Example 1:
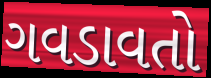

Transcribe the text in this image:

ગવડાવતો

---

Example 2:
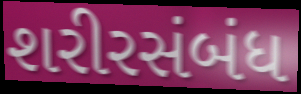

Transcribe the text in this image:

શરીરસંબંધ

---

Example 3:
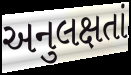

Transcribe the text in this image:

અનુલક્ષતાં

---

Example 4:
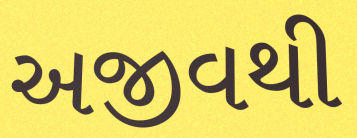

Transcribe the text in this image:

અજીવથી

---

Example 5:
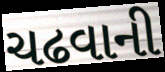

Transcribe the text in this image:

ચઢવાની